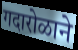
गदारोळाने